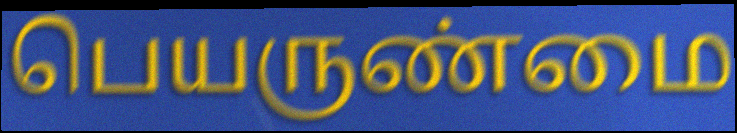
பெயருண்மை